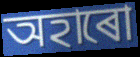
অহাৰো